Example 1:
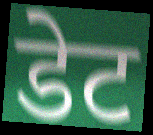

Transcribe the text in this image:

डेट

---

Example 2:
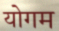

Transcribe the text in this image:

योगम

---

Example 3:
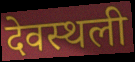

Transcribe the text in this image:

देवस्थली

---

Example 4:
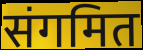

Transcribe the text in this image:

संगमित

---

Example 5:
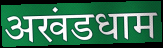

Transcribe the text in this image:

अखंडधाम